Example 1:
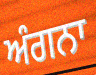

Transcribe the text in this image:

ਅੰਗਨਾ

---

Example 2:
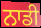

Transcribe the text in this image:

ਨਾਡੀ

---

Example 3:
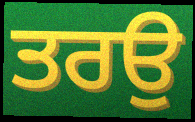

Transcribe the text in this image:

ਤਰਉ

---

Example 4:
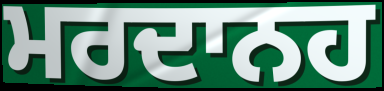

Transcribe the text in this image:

ਮਰਦਾਨਹ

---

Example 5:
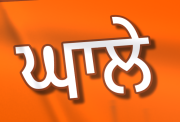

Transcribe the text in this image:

ਘਾਲੇ